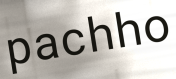
pachho